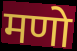
मणो